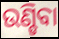
ଉଣ୍ଡିବା